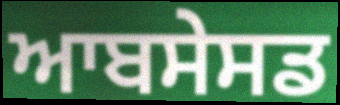
ਆਬਸੇਸਡ